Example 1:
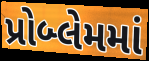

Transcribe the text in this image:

પ્રોબ્લેમમાં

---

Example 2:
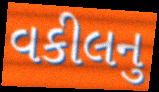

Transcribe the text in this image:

વકીલનુ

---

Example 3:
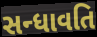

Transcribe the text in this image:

સન્ધાવતિ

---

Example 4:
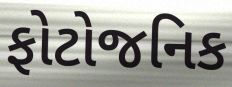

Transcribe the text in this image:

ફોટોજનિક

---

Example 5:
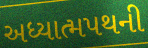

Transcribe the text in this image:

અધ્યાત્મપથની